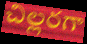
చిల్లరగా